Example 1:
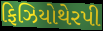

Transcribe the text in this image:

ફિઝિયોથેરપી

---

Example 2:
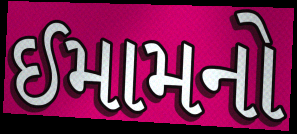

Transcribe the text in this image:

ઈમામનો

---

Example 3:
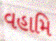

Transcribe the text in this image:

વહામિ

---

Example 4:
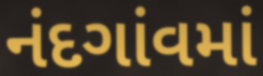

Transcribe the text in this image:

નંદગાંવમાં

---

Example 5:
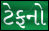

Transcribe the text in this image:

ટેફનો